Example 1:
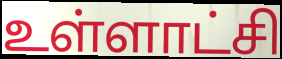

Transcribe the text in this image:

உள்ளாட்சி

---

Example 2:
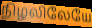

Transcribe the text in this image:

நிழலிலேயே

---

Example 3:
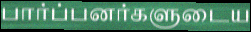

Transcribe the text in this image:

பார்ப்பனர்களுடைய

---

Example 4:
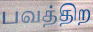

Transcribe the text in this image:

பவத்திற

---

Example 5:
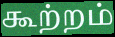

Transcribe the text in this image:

கூற்றம்